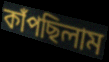
কাঁপছিলাম